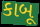
કાબૂ